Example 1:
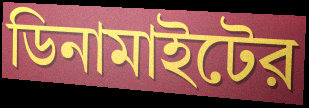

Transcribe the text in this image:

ডিনামাইটের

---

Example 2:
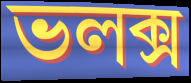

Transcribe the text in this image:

ভলক্স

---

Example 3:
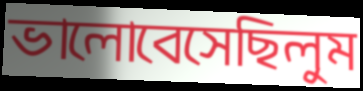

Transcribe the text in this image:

ভালোবেসেছিলুম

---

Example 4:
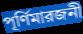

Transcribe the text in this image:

পূর্ণিমারজনী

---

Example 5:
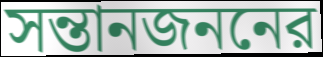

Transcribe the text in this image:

সন্তানজননের